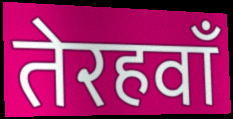
तेरहवाँ